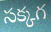
సక్కగ